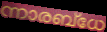
ന്നാരബ്ധേ